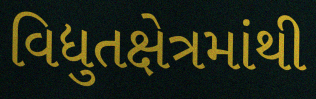
વિદ્યુતક્ષેત્રમાંથી